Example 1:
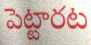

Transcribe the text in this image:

పెట్టారట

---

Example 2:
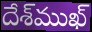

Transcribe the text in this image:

దేశ్‌ముఖ్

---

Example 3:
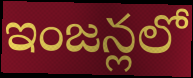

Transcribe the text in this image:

ఇంజన్లలో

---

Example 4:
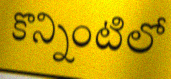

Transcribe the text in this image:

కొన్నింటిలో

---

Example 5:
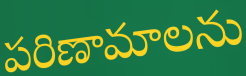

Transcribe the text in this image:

పరిణామాలను